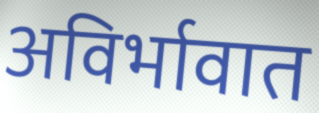
अविर्भावात